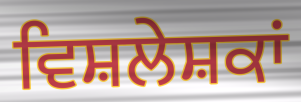
ਵਿਸ਼ਲੇਸ਼ਕਾਂ